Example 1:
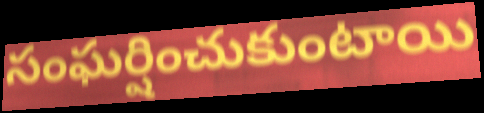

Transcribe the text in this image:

సంఘర్షించుకుంటాయి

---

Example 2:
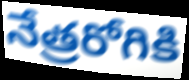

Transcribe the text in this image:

నేత్రరోగికి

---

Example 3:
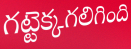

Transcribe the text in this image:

గట్టెక్కగలిగింది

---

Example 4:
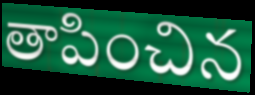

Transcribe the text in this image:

తాపించిన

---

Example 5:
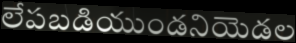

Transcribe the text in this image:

లేపబడియుండనియెడల